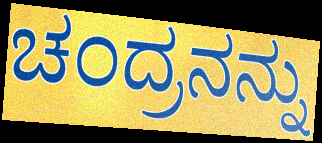
ಚಂದ್ರನನ್ನು